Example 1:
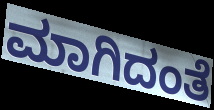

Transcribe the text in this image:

ಮಾಗಿದಂತೆ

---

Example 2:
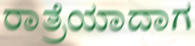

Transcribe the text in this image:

ರಾತ್ರೆಯಾದಾಗ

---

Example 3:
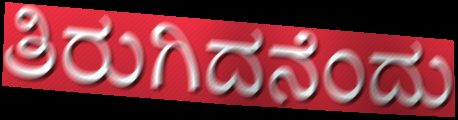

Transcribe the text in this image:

ತಿರುಗಿದನೆಂದು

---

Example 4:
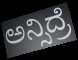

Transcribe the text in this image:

ಅನ್ಸಿದ್ರೆ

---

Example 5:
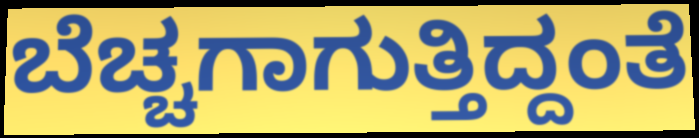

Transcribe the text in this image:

ಬೆಚ್ಚಗಾಗುತ್ತಿದ್ದಂತೆ